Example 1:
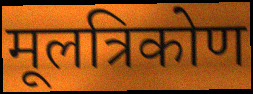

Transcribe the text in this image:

मूलत्रिकोण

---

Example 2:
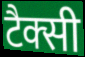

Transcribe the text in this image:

टैक्‍सी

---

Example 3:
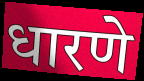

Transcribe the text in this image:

धारणे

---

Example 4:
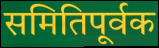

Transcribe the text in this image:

समितिपूर्वक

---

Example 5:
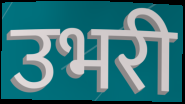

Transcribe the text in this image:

उभरी